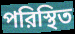
পরিস্থিত